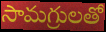
సామగ్రులతో